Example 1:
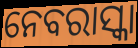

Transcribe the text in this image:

ନେବରାସ୍କା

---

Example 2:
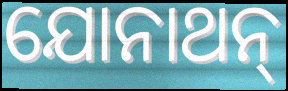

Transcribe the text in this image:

ଯୋନାଥନ୍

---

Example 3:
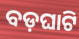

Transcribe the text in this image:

ବଡ଼ଘାଟି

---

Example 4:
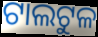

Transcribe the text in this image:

ଟାଲଟୁଳ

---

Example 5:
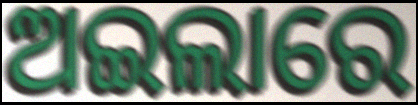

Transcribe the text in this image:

ଅଇଲାରେ